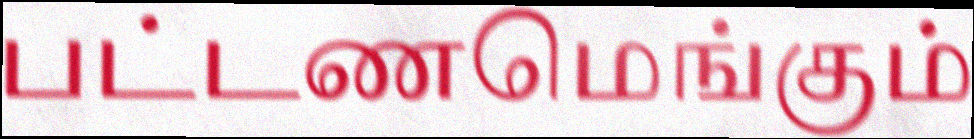
பட்டணமெங்கும்